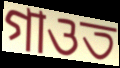
গাওত